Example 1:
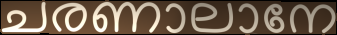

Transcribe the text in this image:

ചരണാലാനേ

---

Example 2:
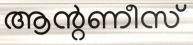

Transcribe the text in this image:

ആന്റണീസ്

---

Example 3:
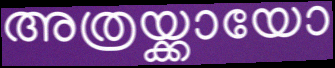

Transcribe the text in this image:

അത്രയ്ക്കായോ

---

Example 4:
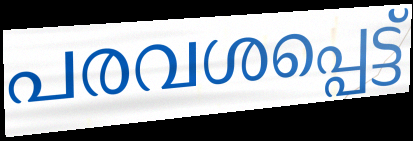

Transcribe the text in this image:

പരവശപ്പെട്ട്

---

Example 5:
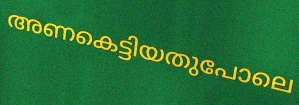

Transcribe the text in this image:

അണകെട്ടിയതുപോലെ